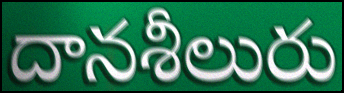
దానశీలురు